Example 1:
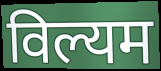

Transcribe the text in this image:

विल्यम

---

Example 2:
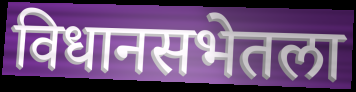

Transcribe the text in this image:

विधानसभेतला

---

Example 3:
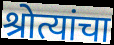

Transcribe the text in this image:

श्रोत्यांचा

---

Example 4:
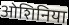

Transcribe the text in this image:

ओशिनिया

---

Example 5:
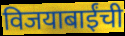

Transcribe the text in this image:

विजयाबाईंची